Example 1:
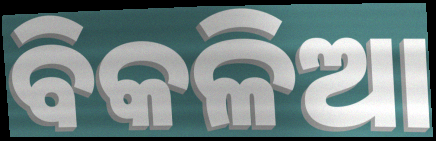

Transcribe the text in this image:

ବିକଳିଆ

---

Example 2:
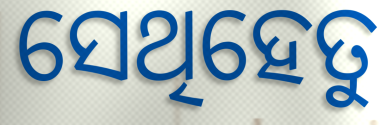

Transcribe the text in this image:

ସେଥିହେତୁ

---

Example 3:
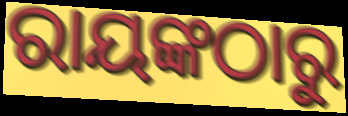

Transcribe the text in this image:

ରାୟଙ୍କଠାରୁ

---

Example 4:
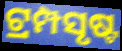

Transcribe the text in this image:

ଟ୍ରମ୍ପସୃଷ୍ଟ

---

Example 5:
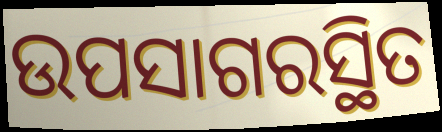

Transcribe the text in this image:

ଉପସାଗରସ୍ଥିତ